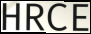
HRCE